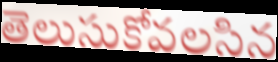
తెలుసుకోవలసిన